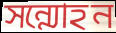
সন্মোহন